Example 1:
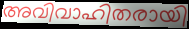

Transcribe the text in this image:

അവിവാഹിതരായി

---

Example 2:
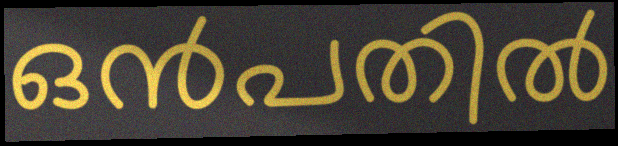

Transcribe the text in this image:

ഒൻപതിൽ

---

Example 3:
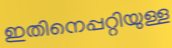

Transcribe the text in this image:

ഇതിനെപ്പറ്റിയുള്ള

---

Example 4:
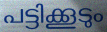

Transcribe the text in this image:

പട്ടിക്കൂടും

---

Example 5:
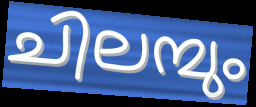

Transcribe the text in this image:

ചിലമ്പും